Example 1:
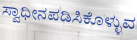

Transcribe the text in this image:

ಸ್ವಾಧೀನಪಡಿಸಿಕೊಳ್ಳುವ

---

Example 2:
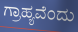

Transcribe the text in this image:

ಗ್ರಾಹ್ಯವೆಂದು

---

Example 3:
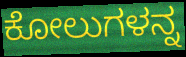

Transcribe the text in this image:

ಕೋಲುಗಳನ್ನ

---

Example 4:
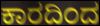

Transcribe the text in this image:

ಕಾರದಿಂದ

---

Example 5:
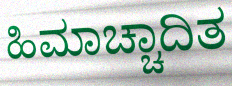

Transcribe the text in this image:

ಹಿಮಾಚ್ಚಾದಿತ